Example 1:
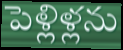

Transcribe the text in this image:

పెళ్లిళ్లను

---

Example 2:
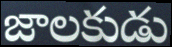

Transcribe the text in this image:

జాలకుడు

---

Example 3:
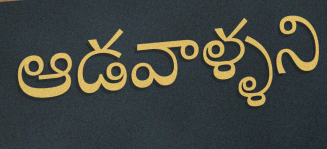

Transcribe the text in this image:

ఆడవాళ్ళని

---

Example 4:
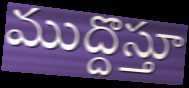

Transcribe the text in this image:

ముద్దొస్తూ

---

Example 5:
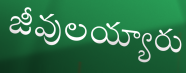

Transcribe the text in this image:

జీవులయ్యారు